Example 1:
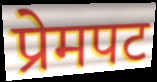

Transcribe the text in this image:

प्रेमपट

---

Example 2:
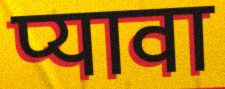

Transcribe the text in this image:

प्यावा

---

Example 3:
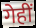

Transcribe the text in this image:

गेहीं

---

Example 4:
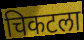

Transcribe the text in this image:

चिकटला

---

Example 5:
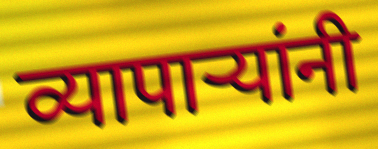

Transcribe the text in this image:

व्यापाऱ्यांनी